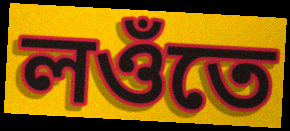
লওঁতে